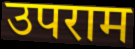
उपराम